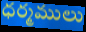
ధర్మములు